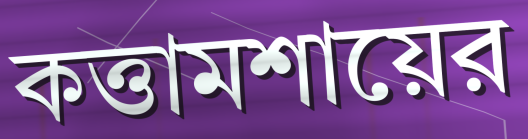
কত্তামশায়ের